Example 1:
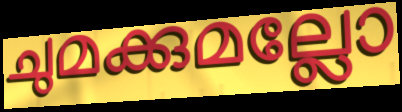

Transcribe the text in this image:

ചുമക്കുമല്ലോ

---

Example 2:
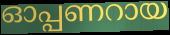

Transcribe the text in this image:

ഓപ്പണറായ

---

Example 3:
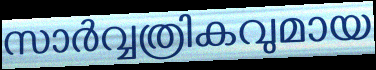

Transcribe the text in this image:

സാർവ്വത്രികവുമായ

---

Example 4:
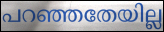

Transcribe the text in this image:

പറഞ്ഞതേയില്ല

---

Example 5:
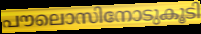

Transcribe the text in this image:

പൗലൊസിനോടുകൂടി